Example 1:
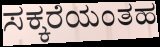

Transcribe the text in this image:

ಸಕ್ಕರೆಯಂತಹ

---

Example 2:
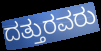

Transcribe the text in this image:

ದತ್ತುರವರು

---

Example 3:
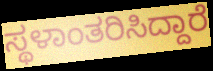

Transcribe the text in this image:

ಸ್ಥಳಾಂತರಿಸಿದ್ದಾರೆ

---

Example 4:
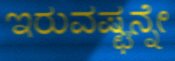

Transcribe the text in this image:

ಇರುವಷ್ಟನ್ನೇ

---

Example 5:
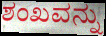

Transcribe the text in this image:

ಶಂಖವನ್ನು